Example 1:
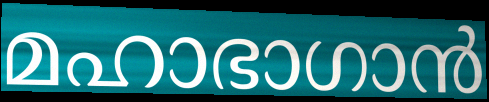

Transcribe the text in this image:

മഹാഭാഗാൻ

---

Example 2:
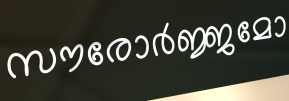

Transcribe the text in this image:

സൗരോർജ്ജമോ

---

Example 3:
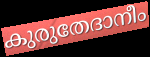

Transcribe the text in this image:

കുരുതേദാനീം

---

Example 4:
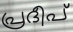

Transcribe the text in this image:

പ്രദീപ്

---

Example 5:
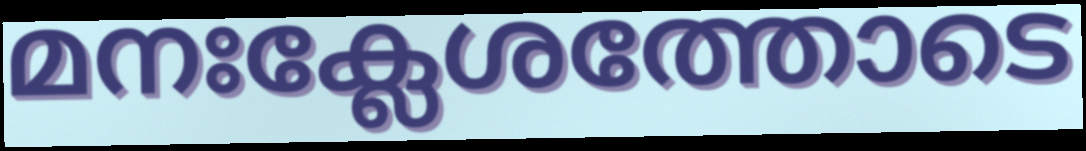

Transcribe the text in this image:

മനഃക്ലേശത്തോടെ